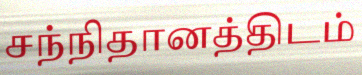
சந்நிதானத்திடம்